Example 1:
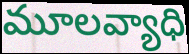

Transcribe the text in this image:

మూలవ్యాధి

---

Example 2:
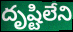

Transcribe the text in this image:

దృష్టిలేని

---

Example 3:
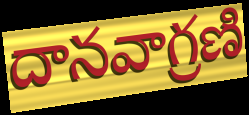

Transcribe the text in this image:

దానవాగ్రణి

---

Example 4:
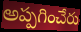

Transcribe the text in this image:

అప్పగించేరు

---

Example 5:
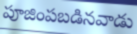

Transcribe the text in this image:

పూజింపబడినవాడు